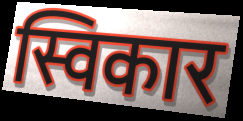
स्विकार